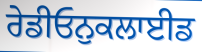
ਰੇਡੀਓਨੁਕਲਾਈਡ